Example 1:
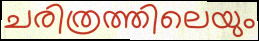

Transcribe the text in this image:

ചരിത്രത്തിലെയും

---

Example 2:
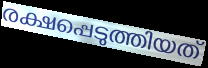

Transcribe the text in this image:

രക്ഷപ്പെടുത്തിയത്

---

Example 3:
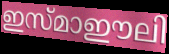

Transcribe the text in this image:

ഇസ്മാഈലി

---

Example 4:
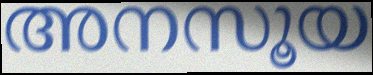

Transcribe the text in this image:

അനസൂയ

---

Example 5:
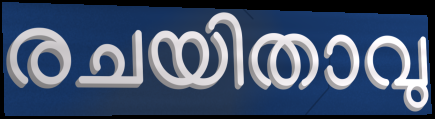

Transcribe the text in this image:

രചയിതാവു